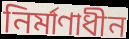
নির্মাণাধীন